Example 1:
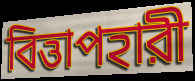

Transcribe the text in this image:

বিত্তাপহারী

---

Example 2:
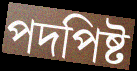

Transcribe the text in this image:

পদপিষ্ট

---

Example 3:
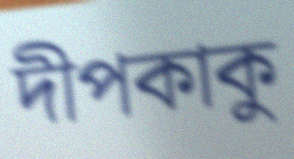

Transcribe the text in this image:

দীপকাকু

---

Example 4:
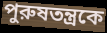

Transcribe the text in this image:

পুরুষতন্ত্রকে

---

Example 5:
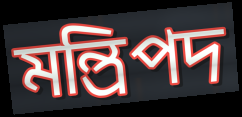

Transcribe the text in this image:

মন্ত্রিপদ